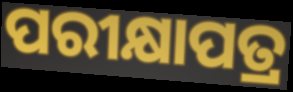
ପରୀକ୍ଷାପତ୍ର